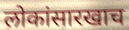
लोकांसारखाच